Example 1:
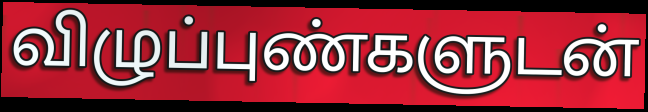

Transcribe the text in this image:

விழுப்புண்களுடன்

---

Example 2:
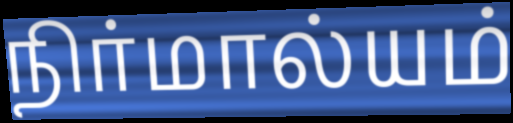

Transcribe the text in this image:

நிர்மால்யம்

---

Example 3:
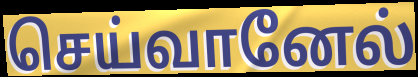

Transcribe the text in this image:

செய்வானேல்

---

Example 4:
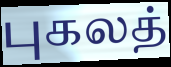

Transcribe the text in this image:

புகலத்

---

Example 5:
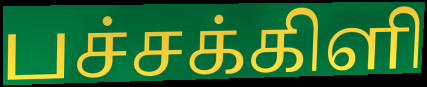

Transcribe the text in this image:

பச்சக்கிளி